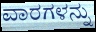
ವಾರಗಳನ್ನು